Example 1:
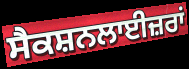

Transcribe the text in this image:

ਸੈਕਸ਼ਨਲਾਈਜ਼ਰਾਂ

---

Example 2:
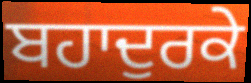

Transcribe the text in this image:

ਬਹਾਦੁਰਕੇ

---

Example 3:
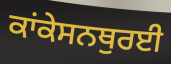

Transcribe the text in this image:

ਕਾਂਕੇਸਨਥੁਰਈ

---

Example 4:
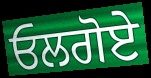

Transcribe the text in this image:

ਓਲਗੋਏ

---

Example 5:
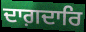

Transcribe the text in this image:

ਦਾਗ਼ਦਾਰਿ